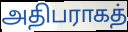
அதிபராகத்